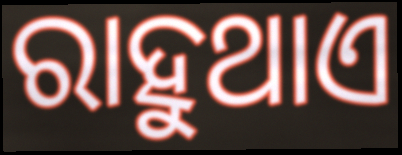
ରାହୁଥାଏ